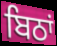
ਬਿਠਾਂ